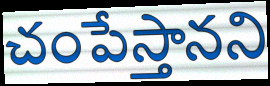
చంపేస్తానని